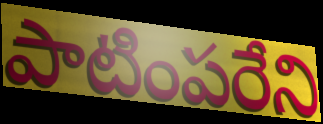
పాటింపరేని